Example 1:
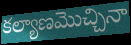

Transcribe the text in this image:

కల్యాణమొచ్చినా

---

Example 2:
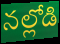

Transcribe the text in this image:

నల్లోడి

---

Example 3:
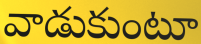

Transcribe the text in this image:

వాడుకుంటూ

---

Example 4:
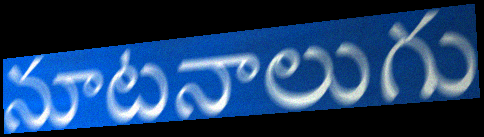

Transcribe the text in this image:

నూటనాలుగు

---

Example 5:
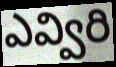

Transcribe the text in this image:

ఎవ్విరి